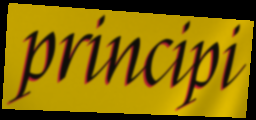
principi